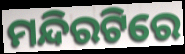
ମନ୍ଦିରଟିରେ